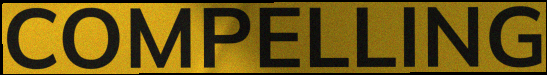
COMPELLING